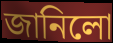
জানিলো